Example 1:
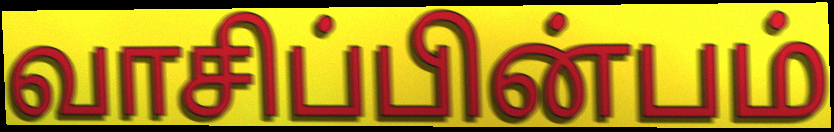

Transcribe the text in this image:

வாசிப்பின்பம்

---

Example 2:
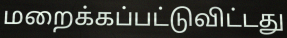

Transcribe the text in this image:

மறைக்கப்பட்டுவிட்டது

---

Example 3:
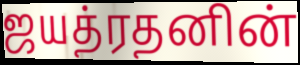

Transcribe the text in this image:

ஜயத்ரதனின்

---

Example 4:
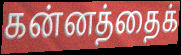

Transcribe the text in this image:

கன்னத்தைக்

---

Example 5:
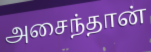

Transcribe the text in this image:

அசைந்தான்